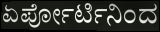
ಏರ್ಪೋರ್ಟಿನಿಂದ